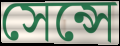
সেন্সে